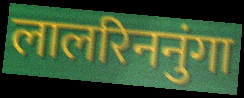
लालरिननुंगा